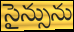
సైన్సును